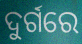
ଦୁର୍ଗରେ